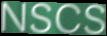
NSCS